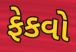
ફેકવો